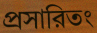
প্রসারিতং